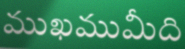
ముఖముమీది